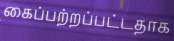
கைப்பற்றப்பட்டதாக